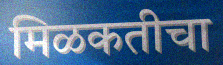
मिळकतीचा